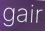
gair